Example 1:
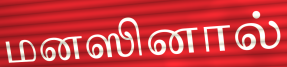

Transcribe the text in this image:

மனஸினால்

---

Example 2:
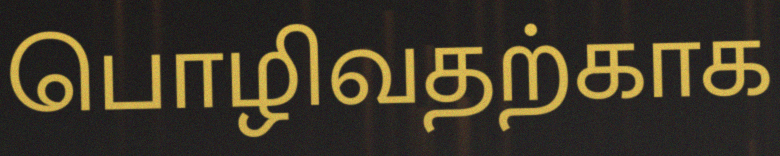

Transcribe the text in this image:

பொழிவதற்காக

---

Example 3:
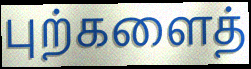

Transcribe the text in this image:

புற்களைத்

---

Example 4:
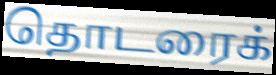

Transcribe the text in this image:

தொடரைக்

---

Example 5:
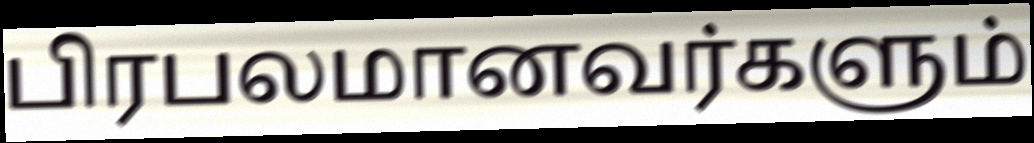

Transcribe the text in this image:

பிரபலமானவர்களும்